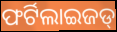
ଫର୍ଟିଲାଇଜଡ୍